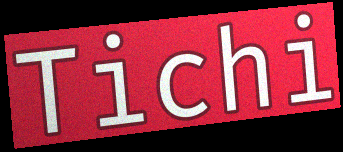
Tichi